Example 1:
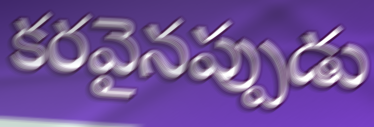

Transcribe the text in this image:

కరవైనప్పుడు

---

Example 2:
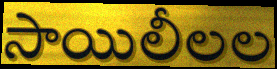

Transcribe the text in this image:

సాయిలీలల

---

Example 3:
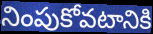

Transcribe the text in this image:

నింపుకోవటానికి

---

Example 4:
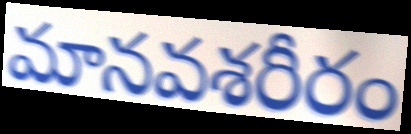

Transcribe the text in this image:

మానవశరీరం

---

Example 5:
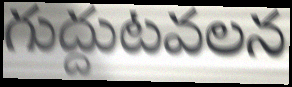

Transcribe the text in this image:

గుద్దుటవలన